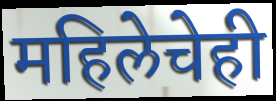
महिलेचेही